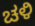
ಚಳಿ